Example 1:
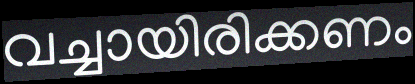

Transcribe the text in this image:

വച്ചായിരിക്കണം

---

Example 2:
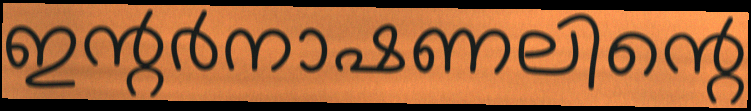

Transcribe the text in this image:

ഇന്റർനാഷണലിന്റെ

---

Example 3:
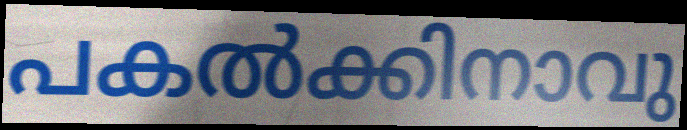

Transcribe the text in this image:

പകൽക്കിനാവു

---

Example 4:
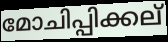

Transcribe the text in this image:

മോചിപ്പിക്കല്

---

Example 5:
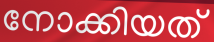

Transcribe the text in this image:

നോക്കിയത്